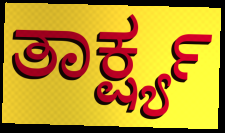
ತಾರ್ಕ್ಷ್ಯ